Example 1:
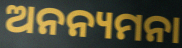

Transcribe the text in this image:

ଅନନ୍ୟମନା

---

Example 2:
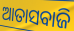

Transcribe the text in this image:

ଆତାସବାଜି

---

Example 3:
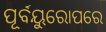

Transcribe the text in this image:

ପୂର୍ବୟୁରୋପରେ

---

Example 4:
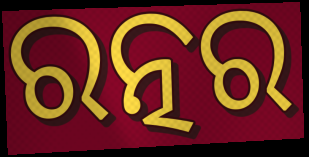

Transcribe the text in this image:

ରତ୍ନର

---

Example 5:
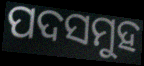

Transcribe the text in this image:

ପଦସମୁହ